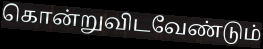
கொன்றுவிடவேண்டும்